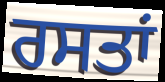
ਰਸਤਾਂ